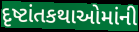
દૃષ્ટાંતકથાઓમાંની